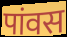
पांवस